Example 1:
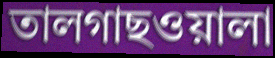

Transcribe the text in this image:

তালগাছওয়ালা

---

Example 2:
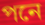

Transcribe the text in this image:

পনে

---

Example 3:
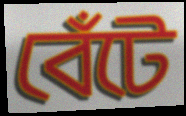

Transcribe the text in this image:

বেঁটে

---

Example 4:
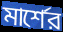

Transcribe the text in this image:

মার্শের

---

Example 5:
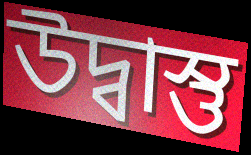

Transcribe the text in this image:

উদ্বাস্তু